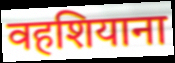
वहशियाना